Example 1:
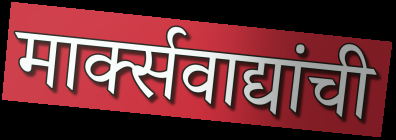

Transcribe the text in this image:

मार्क्सवाद्यांची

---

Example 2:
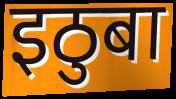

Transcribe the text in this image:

इठुबा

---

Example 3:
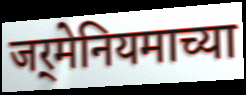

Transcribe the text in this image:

जर्मेनियमाच्या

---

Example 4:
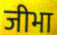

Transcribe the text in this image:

जीभा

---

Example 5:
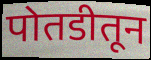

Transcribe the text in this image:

पोतडीतून